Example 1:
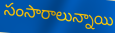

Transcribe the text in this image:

సంసారాలున్నాయి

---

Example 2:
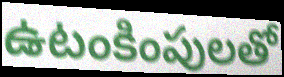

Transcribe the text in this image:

ఉటంకింపులతో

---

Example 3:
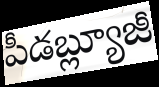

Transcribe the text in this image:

పీడబ్ల్యూజీ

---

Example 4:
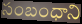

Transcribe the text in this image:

సంబంధాని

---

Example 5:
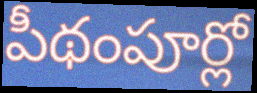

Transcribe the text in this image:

పీథంపూర్లో